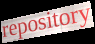
repository